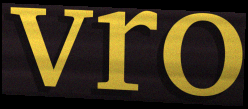
vro